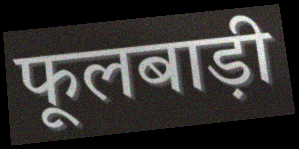
फूलबाड़ी